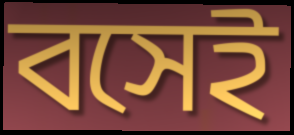
বসেই